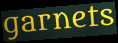
garnets